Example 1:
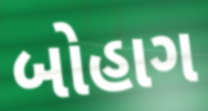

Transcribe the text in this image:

બોહાગ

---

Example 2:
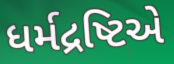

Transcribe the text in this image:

ધર્મદ્રષ્ટિએ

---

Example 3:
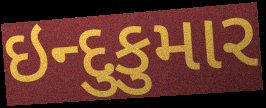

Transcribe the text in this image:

ઇન્દુકુમાર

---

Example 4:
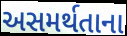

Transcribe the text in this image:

અસમર્થતાના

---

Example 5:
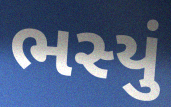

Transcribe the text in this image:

ભસ્યું